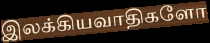
இலக்கியவாதிகளோ